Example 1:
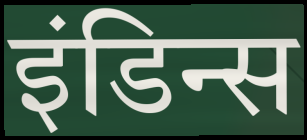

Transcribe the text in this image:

इंडिन्स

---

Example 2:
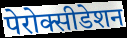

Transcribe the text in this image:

पेरोक्सीडेशन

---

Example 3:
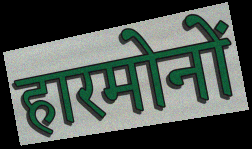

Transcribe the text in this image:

हारमोनों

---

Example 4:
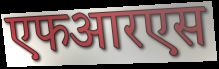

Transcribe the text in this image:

एफआरएस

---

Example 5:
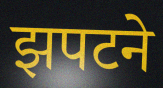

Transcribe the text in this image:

झपटने